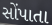
સોંપાતા